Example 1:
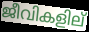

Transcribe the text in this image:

ജീവികളില്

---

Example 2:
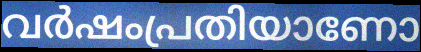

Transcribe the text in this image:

വർഷംപ്രതിയാണോ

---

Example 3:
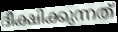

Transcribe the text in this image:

ദീക്ഷിക്കുന്നത്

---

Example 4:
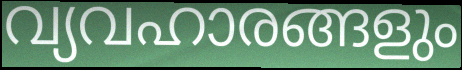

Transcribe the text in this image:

വ്യവഹാരങ്ങളും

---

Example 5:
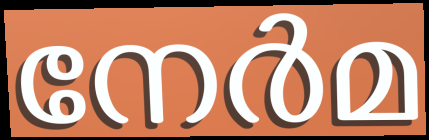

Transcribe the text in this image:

നേർമ